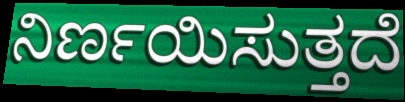
ನಿರ್ಣಯಿಸುತ್ತದೆ